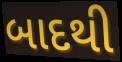
બાદથી